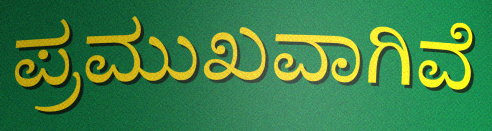
ಪ್ರಮುಖವಾಗಿವೆ